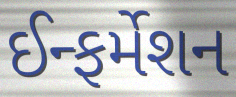
ઈન્ફર્મેશન